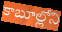
కాబూల్లోని